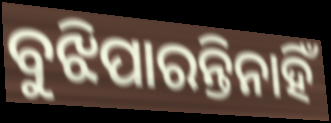
ବୁଝିପାରନ୍ତିନାହିଁ